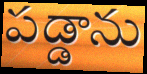
పడ్డాను